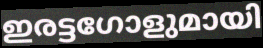
ഇരട്ടഗോളുമായി